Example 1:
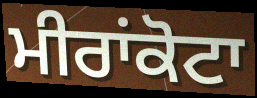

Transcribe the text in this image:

ਮੀਰਾਂਕੋਟਾ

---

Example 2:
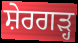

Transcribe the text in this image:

ਸ਼ੇਰਗੜ੍ਹ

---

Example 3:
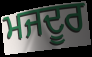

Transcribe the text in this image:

ਮਜਦੂਰ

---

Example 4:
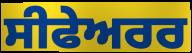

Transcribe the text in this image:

ਸੀਫੇਅਰਰ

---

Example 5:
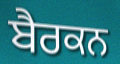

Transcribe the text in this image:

ਬੈਰਕਨ